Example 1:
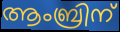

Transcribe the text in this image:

ആംബ്രിന്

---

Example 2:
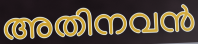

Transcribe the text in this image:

അതിനവൻ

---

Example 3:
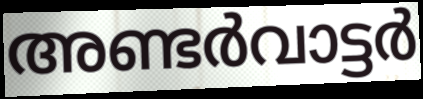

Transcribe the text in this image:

അണ്ടർവാട്ടർ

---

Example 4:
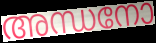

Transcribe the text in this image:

അന്ധനോ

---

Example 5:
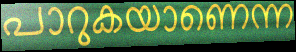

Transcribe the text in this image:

പാറുകയാണെന്ന